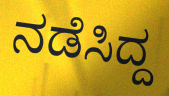
ನಡೆಸಿದ್ದ